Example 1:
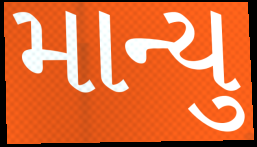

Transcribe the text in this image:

માન્યુ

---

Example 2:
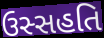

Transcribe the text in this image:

ઉસ્સહતિ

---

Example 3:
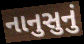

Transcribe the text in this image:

નાનુસુનું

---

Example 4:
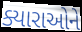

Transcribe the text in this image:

ક્યારાઓને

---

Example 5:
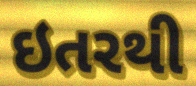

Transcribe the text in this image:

ઇતરથી